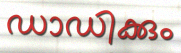
ഡാഡിക്കും